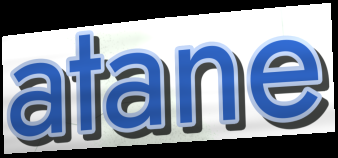
atane